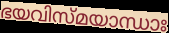
ഭയവിസ്മയാന്ധാഃ